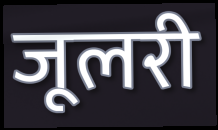
जूलरी